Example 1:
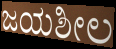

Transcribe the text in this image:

ಜಯಶೀಲ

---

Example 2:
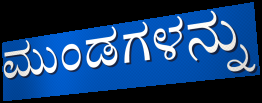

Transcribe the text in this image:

ಮುಂಡಗಳನ್ನು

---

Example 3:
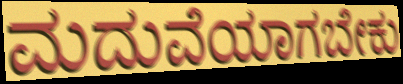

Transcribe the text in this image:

ಮದುವೆಯಾಗಬೇಕು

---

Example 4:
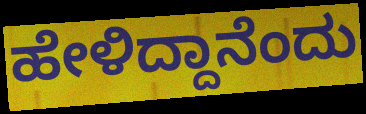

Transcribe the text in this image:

ಹೇಳಿದ್ದಾನೆಂದು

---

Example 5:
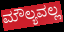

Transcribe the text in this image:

ಮೌಲ್ಯವಲ್ಲ